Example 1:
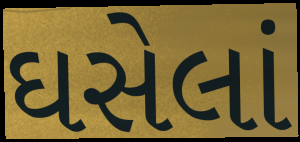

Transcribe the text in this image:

ઘસેલાં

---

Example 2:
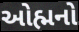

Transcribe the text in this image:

ઓહ્મનો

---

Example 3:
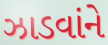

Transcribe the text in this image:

ઝાડવાંને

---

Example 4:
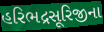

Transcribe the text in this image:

હરિભદ્રસૂરિજીના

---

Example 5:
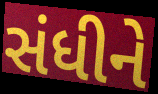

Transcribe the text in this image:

સંધીને